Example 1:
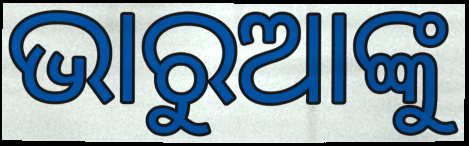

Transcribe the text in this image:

ଭାରୁଆଙ୍କୁ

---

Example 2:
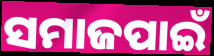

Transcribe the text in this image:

ସମାଜପାଇଁ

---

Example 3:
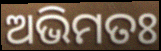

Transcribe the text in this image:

ଅଭିମତଃ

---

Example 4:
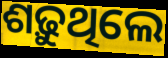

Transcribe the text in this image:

ଶଢ଼ୁଥିଲେ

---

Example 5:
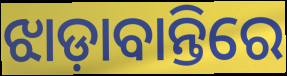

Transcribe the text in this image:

ଝାଡ଼ାବାନ୍ତିରେ